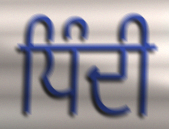
ਧਿੰਦੀ